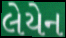
લેયેન